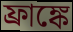
ফ্রাঙ্কে